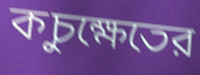
কচুক্ষেতের